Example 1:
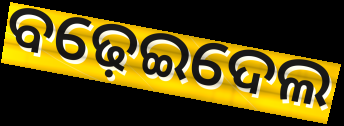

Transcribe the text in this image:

ବଢ଼େଇଦେଲ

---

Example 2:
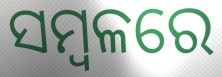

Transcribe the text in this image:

ସମ୍ବଳରେ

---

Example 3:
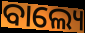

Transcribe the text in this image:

ବାଲ୍ୟେ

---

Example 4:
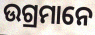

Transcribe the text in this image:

ଉଗ୍ରମାନେ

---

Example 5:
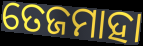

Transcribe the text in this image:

ତେଜମାହା